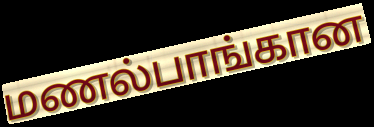
மணல்பாங்கான